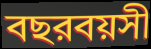
বছরবয়সী